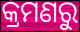
କ୍ରମଣରୁ